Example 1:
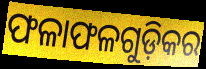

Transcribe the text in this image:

ଫଳାଫଳଗୁଡ଼ିକର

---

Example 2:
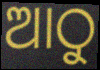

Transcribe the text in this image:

ଆଠୁ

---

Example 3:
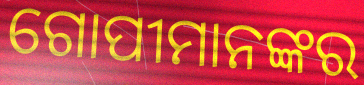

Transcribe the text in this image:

ଗୋପୀମାନଙ୍କର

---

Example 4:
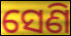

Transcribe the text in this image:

ସେଣି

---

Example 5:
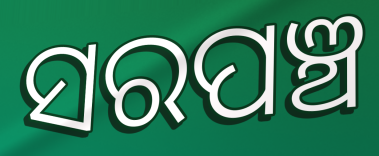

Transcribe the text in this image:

ସରପଞ୍ଚ